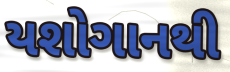
યશોગાનથી